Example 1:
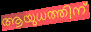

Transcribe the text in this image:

ആയുധത്തിന്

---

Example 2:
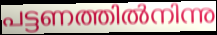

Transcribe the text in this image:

പട്ടണത്തിൽനിന്നു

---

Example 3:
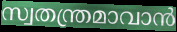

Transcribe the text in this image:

സ്വതന്ത്രമാവാൻ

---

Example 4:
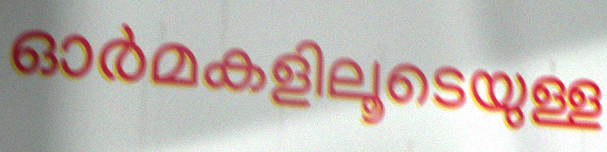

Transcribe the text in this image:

ഓർമകളിലൂടെയുള്ള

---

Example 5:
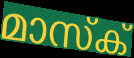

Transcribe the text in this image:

മാസ്‌ക്